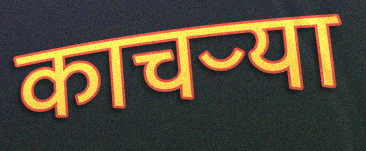
काचऱ्या